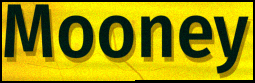
Mooney